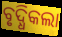
ବୃଦ୍ଧିକଲା